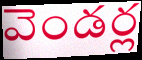
వెండర్ల